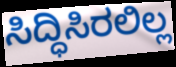
ಸಿದ್ಧಿಸಿರಲಿಲ್ಲ